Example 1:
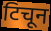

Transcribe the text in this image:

टिचून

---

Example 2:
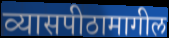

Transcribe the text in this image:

व्यासपीठामागील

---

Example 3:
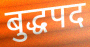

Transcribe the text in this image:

बुद्धपद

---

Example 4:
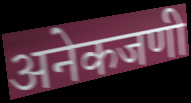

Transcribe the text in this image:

अनेकजणी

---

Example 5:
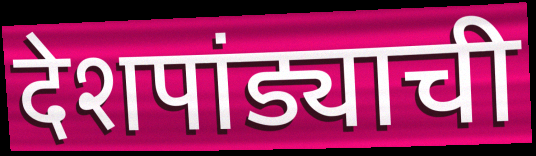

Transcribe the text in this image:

देशपांड्याची